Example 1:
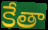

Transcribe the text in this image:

కేతా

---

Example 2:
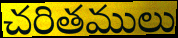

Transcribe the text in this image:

చరితములు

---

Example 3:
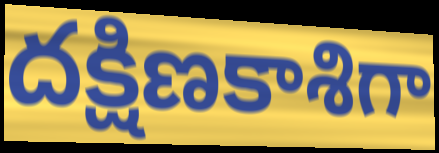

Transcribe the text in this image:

దక్షిణకాశిగా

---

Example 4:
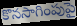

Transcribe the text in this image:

కొనసాగింపుపై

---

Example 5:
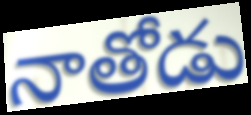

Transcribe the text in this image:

నాతోడు